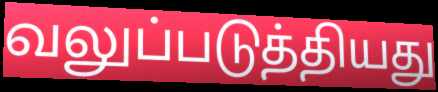
வலுப்படுத்தியது